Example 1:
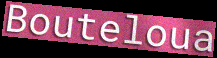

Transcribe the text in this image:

Bouteloua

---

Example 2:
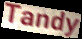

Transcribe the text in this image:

Tandy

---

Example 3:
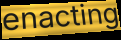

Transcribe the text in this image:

enacting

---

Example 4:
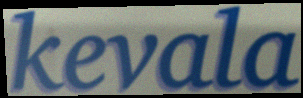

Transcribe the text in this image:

kevala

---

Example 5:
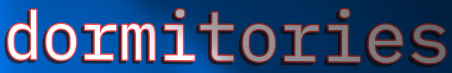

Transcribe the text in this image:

dormitories